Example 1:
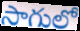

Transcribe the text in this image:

సాగులో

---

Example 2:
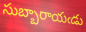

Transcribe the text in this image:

సుబ్బారాయఁడు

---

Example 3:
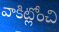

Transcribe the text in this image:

వాకిట్లోంచి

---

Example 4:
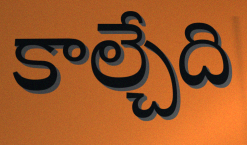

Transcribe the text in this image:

కాల్చేది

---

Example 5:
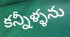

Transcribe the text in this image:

కన్నీళ్ళను